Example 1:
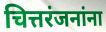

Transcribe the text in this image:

चित्तरंजनांना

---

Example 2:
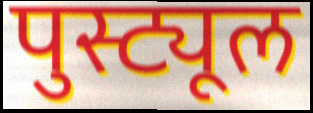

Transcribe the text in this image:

पुस्ट्यूल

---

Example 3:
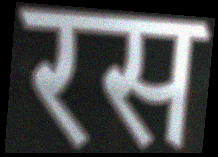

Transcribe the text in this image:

रस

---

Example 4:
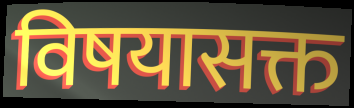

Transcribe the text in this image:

विषयासक्त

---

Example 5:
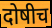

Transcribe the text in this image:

दोषीच